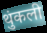
थुंकली